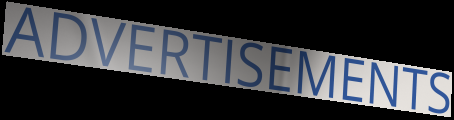
ADVERTISEMENTS